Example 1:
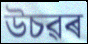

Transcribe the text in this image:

উচৱৰ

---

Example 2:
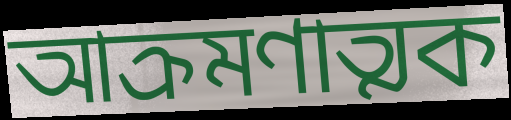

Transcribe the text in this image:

আক্ৰমণাত্মক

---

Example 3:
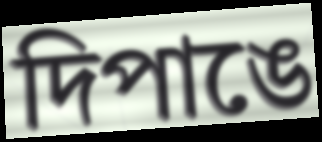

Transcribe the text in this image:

দিপাঙে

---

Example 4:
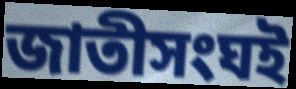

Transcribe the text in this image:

জাতীসংঘই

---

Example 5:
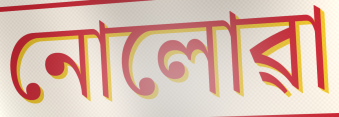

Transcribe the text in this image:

নোলোৱা